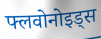
फ्लवोनोइड्स